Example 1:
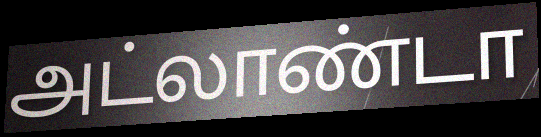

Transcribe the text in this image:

அட்லாண்டா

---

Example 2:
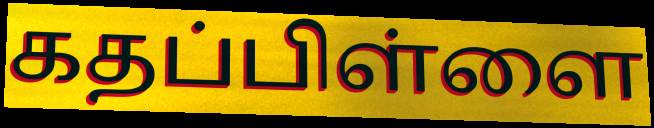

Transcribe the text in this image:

கதப்பிள்ளை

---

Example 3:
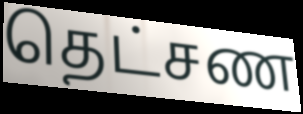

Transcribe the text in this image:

தெட்சண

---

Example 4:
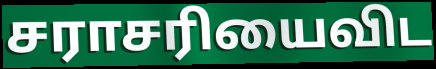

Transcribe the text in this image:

சராசரியைவிட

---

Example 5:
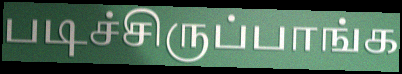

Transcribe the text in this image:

படிச்சிருப்பாங்க